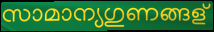
സാമാന്യഗുണങ്ങള്